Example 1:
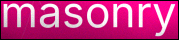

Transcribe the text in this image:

masonry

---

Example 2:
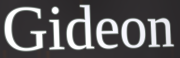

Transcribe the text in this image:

Gideon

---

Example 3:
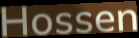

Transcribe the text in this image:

Hossen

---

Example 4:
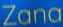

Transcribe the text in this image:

Zana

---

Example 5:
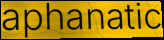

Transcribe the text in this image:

aphanatic